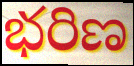
భరిణ